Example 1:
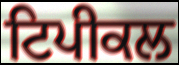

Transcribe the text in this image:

ਟਿਪੀਕਲ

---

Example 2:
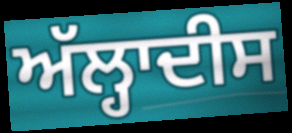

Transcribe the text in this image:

ਅੱਲ੍ਹਾਦੀਸ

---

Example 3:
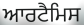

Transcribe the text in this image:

ਆਰਟੈਮਿਸ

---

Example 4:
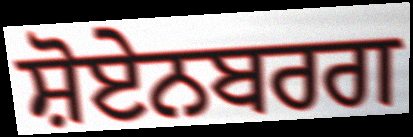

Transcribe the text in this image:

ਸ਼ੋਏਨਬਰਗ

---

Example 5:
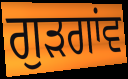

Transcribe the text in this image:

ਗੁੜਗਾਂਵ